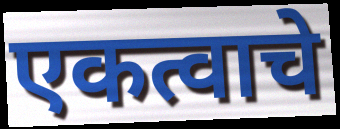
एकत्वाचे